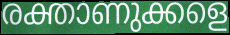
രക്താണുക്കളെ